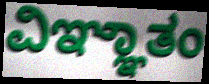
ವಿಞ್ಞಾತಂ